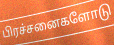
பிரச்சனைகளோடு